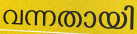
വന്നതായി